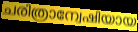
ചരിത്രാന്വേഷിയായ